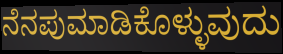
ನೆನಪುಮಾಡಿಕೊಳ್ಳುವುದು